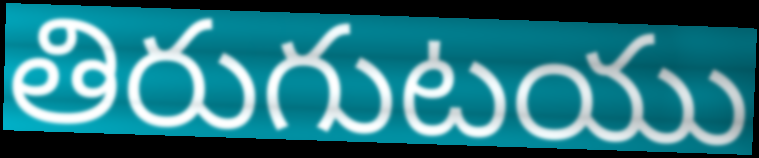
తిరుగుటయు